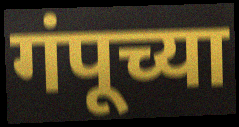
गंपूच्या